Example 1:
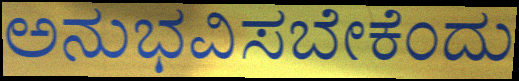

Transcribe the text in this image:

ಅನುಭವಿಸಬೇಕೆಂದು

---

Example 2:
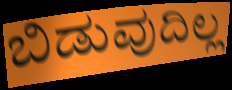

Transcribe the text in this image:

ಬಿಡುವುದಿಲ್ಲ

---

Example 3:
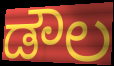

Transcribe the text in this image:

ಡೌಲ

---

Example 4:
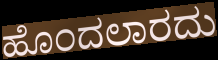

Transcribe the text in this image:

ಹೊಂದಲಾರದು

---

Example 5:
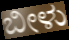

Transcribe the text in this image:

ಬೀಳು